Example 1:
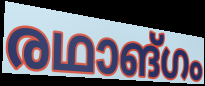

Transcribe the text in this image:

രഥാങ്ഗം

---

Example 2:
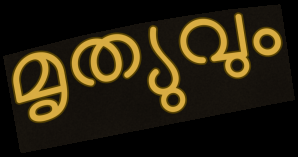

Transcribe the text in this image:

മൃത്യുവും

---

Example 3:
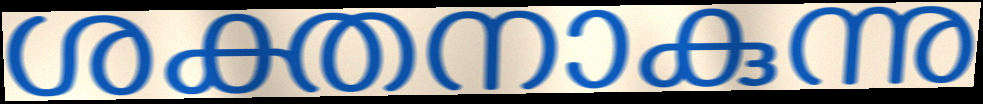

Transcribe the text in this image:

ശക്തനാകുന്നു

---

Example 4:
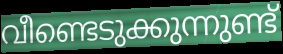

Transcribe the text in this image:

വീണ്ടെടുക്കുന്നുണ്ട്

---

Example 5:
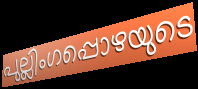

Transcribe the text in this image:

പുല്ലിംഗപ്പൊഴയുടെ